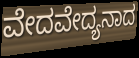
ವೇದವೇದ್ಯನಾದ